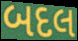
બદલ